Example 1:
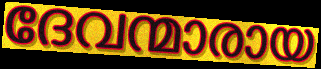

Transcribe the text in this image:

ദേവന്മാരായ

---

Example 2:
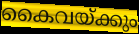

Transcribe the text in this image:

കൈവയ്ക്കും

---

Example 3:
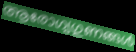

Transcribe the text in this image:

ആരോഗ്യഗുണങ്ങൾ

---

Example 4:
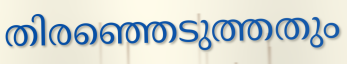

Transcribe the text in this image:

തിരഞ്ഞെടുത്തതും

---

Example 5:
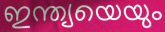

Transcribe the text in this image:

ഇന്ത്യയെയും